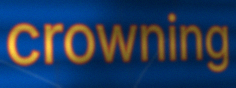
crowning